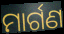
ମାର୍ଗଣ